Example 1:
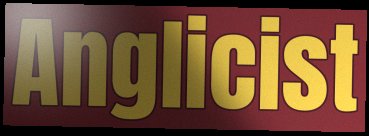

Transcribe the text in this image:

Anglicist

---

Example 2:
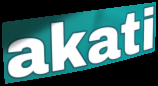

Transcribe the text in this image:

akati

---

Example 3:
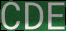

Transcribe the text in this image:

CDE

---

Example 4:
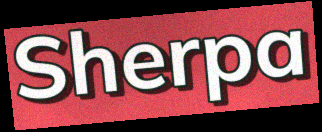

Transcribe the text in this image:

Sherpa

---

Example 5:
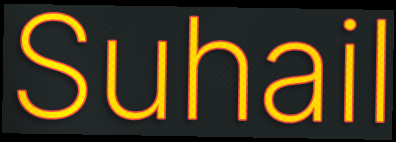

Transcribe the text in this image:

Suhail